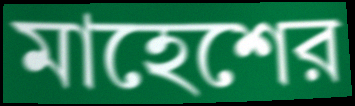
মাহেশের